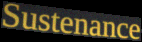
Sustenance